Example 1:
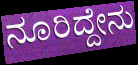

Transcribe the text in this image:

ನೂರಿದ್ದೇನು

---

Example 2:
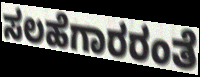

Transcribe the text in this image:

ಸಲಹೆಗಾರರಂತೆ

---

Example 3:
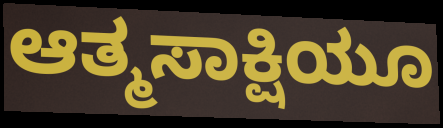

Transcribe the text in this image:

ಆತ್ಮಸಾಕ್ಷಿಯೂ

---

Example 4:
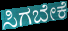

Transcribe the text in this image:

ಸಿಗಬೇಕೆ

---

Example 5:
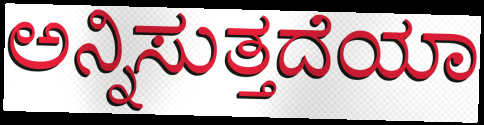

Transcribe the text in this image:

ಅನ್ನಿಸುತ್ತದೆಯಾ